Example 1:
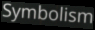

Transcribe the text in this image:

Symbolism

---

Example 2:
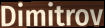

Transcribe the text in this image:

Dimitrov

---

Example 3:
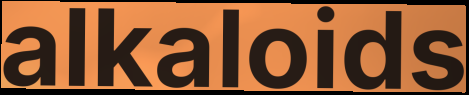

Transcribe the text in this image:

alkaloids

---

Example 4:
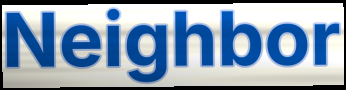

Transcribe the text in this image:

Neighbor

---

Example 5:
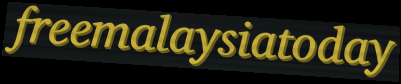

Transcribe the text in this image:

freemalaysiatoday